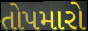
તોપમારો